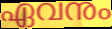
ഏവനും